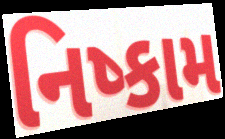
નિષ્કામ